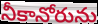
నీకానోరును